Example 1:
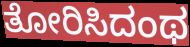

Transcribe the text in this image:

ತೋರಿಸಿದಂಥ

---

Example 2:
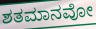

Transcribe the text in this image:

ಶತಮಾನವೋ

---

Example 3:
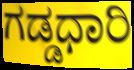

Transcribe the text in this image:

ಗಡ್ಡಧಾರಿ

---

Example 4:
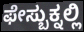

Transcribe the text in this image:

ಫೇಸ್ಬುಕ್ನಲ್ಲಿ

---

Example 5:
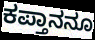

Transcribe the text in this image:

ಕಪ್ತಾನನೂ